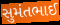
સુમંતભાઈ